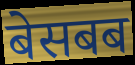
बेसबब